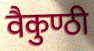
वैकुण्ठी